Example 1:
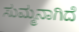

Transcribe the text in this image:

ಸುಮ್ಮನಾಗಿದೆ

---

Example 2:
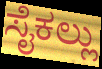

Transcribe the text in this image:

ಸೈಕಲ್ಲು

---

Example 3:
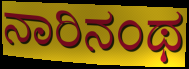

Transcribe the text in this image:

ನಾರಿನಂಥ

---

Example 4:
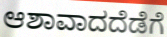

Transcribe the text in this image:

ಆಶಾವಾದದೆಡೆಗೆ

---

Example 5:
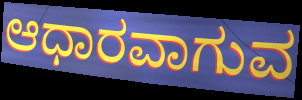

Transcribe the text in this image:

ಆಧಾರವಾಗುವ